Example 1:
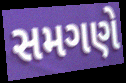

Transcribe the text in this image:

સમગણે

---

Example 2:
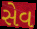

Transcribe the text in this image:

સેવ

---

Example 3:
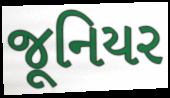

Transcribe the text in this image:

જૂનિયર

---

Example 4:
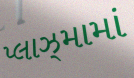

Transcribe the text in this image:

પ્લાઝ્મામાં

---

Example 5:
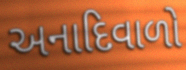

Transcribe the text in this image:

અનાદિવાળો